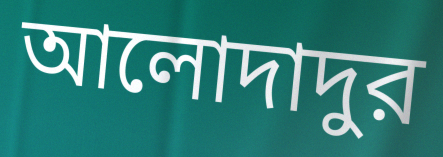
আলোদাদুর